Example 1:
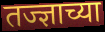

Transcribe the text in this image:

तज्ज्ञाच्या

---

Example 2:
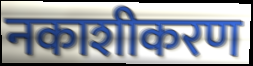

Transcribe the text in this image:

नकाशीकरण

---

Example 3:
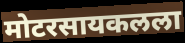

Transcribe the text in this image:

मोटरसायकलला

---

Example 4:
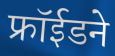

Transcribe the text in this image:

फ्रॉईडने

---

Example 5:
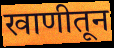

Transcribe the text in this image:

खाणीतून